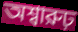
অশ্বারুঢ়